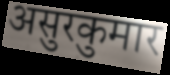
असुरकुमार